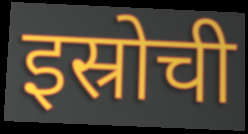
इस्रोची